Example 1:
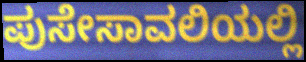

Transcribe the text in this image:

ಪುಸೇಸಾವಲಿಯಲ್ಲಿ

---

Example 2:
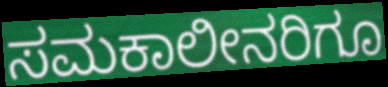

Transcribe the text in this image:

ಸಮಕಾಲೀನರಿಗೂ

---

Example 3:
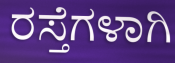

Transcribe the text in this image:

ರಸ್ತೆಗಳಾಗಿ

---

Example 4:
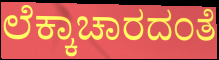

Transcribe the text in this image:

ಲೆಕ್ಕಾಚಾರದಂತೆ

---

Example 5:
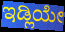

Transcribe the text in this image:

ಇಡ್ಲಿಯೇ